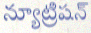
న్యూట్రిషన్